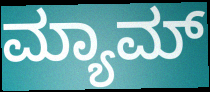
ಮ್ಯಾಮ್